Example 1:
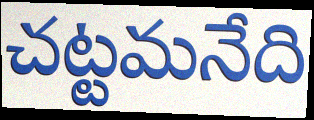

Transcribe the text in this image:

చట్టమనేది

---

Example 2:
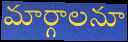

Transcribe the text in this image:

మార్గాలనూ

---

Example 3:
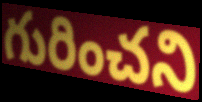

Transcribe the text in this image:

గురించని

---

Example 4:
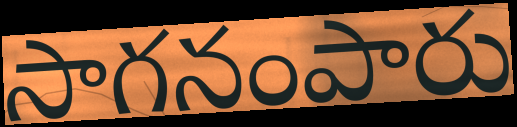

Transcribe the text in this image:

సాగనంపారు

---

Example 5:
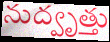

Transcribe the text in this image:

నుద్వృత్తు